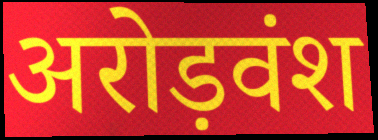
अरोड़वंश